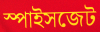
স্পাইসজেট